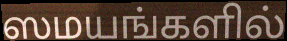
ஸமயங்களில்